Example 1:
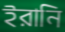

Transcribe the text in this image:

ইরানি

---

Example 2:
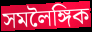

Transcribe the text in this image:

সমলৈঙ্গিক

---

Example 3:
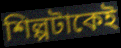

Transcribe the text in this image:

শিল্পটাকেই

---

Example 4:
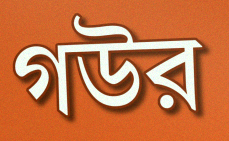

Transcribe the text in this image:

গউর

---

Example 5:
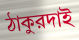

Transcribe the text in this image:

ঠাকুরদাই